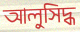
আলুসিদ্ধ